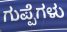
ಗುಪ್ಪೆಗಳು